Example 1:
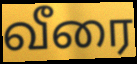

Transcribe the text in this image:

வீரை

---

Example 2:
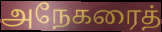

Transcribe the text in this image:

அநேகரைத்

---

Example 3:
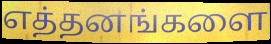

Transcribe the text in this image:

எத்தனங்களை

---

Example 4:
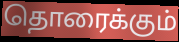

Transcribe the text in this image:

தொரைக்கும்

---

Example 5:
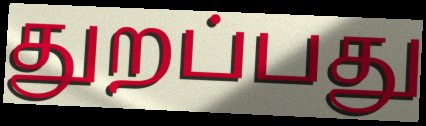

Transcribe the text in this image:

துறப்பது